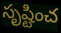
సృష్టించ